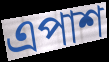
এপাশ